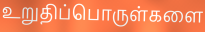
உறுதிப்பொருள்களை